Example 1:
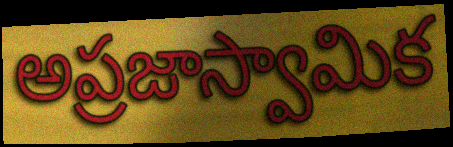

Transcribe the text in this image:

అప్రజాస్వామిక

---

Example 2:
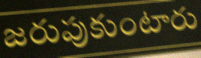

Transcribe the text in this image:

జరుపుకుంటారు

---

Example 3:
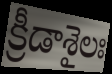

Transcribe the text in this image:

క్రీడాశైలః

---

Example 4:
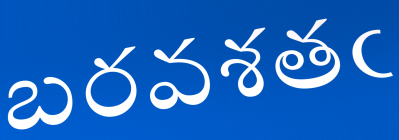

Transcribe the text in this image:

బరవశతఁ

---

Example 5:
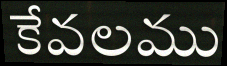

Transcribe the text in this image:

కేవలము